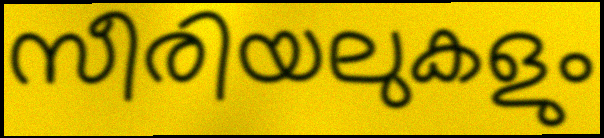
സീരിയലുകളും